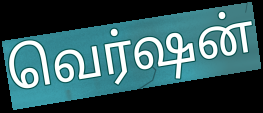
வெர்ஷன்